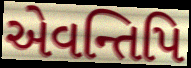
એવન્તિપિ